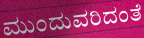
ಮುಂದುವರಿದಂತೆ